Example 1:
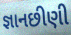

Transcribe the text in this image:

જ્ઞાનછીણી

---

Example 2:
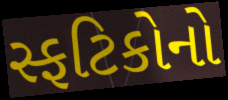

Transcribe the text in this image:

સ્ફટિકોનો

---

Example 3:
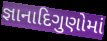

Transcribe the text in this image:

જ્ઞાનાદિગુણોમાં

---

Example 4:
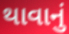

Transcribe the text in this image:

થાવાનું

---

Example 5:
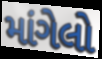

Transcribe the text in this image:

માંગેલો